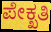
ಪೇಕ್ಖತಿ